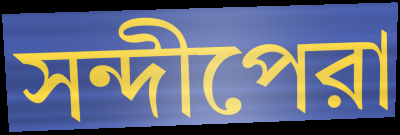
সন্দীপেরা